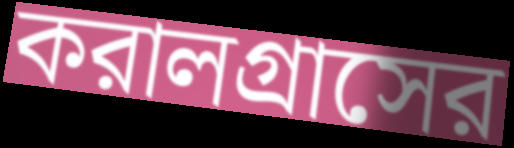
করালগ্রাসের